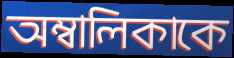
অম্বালিকাকে